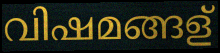
വിഷമങ്ങള്